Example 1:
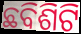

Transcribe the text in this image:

ଛବିଶିଟି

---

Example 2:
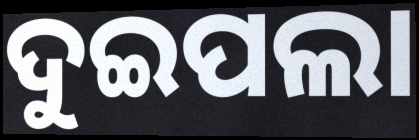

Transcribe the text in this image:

ଦୁଇପଲା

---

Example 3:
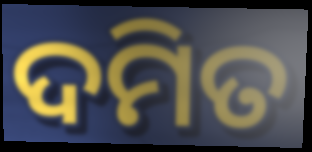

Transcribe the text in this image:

ଦମିତ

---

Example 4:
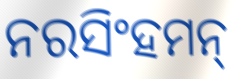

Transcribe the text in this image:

ନରସିଂହମନ୍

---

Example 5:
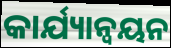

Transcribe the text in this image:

କାର୍ଯ୍ୟାନ୍ଵୟନ